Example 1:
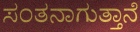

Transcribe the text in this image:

ಸಂತನಾಗುತ್ತಾನೆ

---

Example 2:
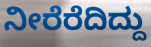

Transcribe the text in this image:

ನೀರೆರೆದಿದ್ದು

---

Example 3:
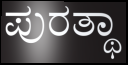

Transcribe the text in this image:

ಪುರತ್ಥಾ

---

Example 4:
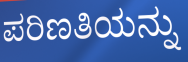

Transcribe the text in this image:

ಪರಿಣತಿಯನ್ನು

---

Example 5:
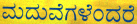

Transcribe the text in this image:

ಮದುವೆಗಳೆಂದರೆ